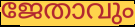
ജേതാവും